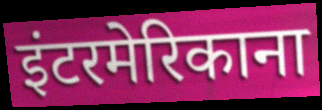
इंटरमेरिकाना